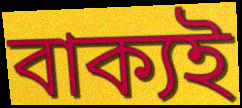
বাক্যই